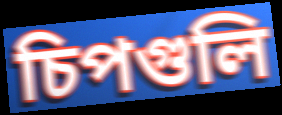
চিপগুলি